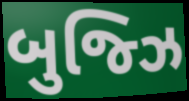
બુજ્ઝિ